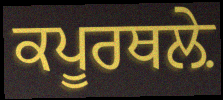
ਕਪੂਰਥਲ਼ੇ